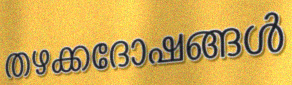
തഴക്കദോഷങ്ങൾ